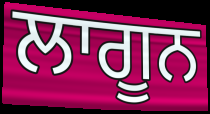
ਲਾਗੂਨ